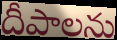
దీపాలను